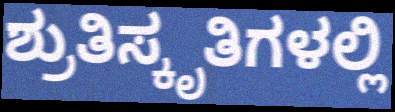
ಶ್ರುತಿಸ್ಕೃತಿಗಳಲ್ಲಿ